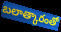
బలాత్కారంతో